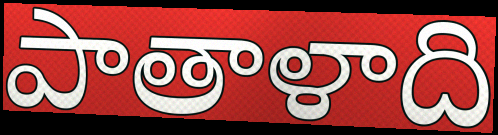
పాతాళాది